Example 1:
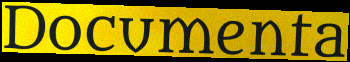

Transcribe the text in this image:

Documenta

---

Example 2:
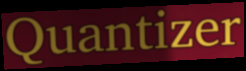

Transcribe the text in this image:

Quantizer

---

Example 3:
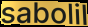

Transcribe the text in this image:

sabolil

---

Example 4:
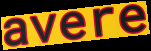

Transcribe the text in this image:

avere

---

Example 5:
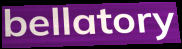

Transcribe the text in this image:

bellatory